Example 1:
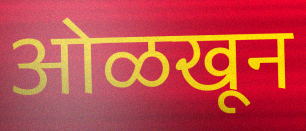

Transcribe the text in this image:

ओळखून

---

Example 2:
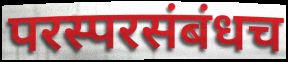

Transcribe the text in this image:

परस्परसंबंधच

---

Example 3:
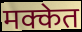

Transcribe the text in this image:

मक्केत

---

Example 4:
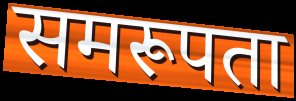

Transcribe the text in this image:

समरूपता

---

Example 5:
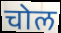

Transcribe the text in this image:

चोल